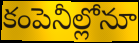
కంపెనీల్లోనూ